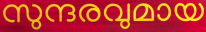
സുന്ദരവുമായ